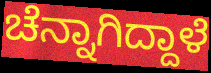
ಚೆನ್ನಾಗಿದ್ದಾಳೆ